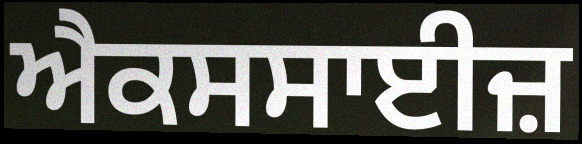
ਐਕਸਸਾਈਜ਼